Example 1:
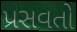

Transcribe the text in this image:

પ્રસવતો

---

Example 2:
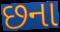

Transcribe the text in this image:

છના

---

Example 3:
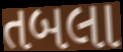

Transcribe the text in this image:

તબલા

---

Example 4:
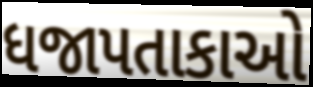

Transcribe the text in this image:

ધજાપતાકાઓ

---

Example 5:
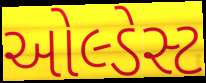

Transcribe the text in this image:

ઓલ્ડેસ્ટ